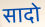
सादो